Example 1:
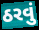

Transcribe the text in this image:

ઠરવું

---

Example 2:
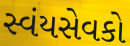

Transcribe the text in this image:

સ્વંયસેવકો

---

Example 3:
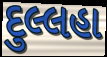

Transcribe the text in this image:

દુલ્લહા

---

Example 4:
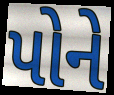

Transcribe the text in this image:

પોને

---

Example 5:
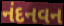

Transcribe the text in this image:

નંદનવન